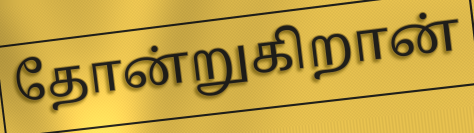
தோன்றுகிறான்